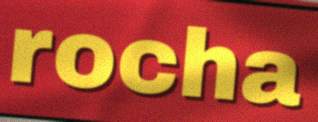
rocha